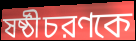
ষষ্ঠীচরণকে